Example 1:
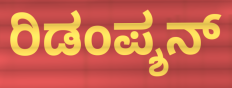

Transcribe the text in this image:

ರಿಡಂಪ್ಶನ್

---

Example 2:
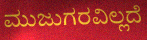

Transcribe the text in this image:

ಮುಜುಗರವಿಲ್ಲದೆ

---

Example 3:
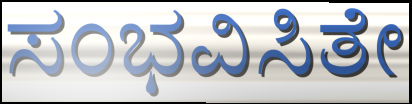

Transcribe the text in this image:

ಸಂಭವಿಸಿತೇ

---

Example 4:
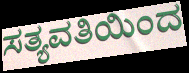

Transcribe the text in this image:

ಸತ್ಯವತಿಯಿಂದ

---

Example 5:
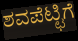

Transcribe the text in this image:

ಶವಪೆಟ್ಟಿಗೆ